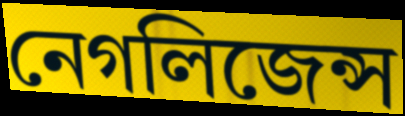
নেগলিজেন্স